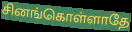
சினங்கொள்ளாதே